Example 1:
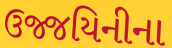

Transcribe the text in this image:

ઉજ્જયિનીના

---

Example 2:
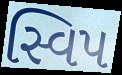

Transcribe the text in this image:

સ્વિપ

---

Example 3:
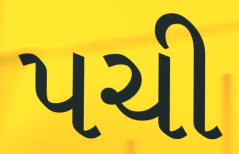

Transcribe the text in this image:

પચી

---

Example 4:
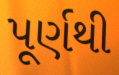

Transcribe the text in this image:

પૂર્ણથી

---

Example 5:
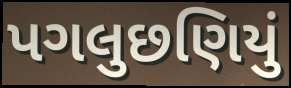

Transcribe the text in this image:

પગલુછણિયું